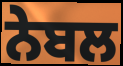
ਨੇਬਲ